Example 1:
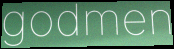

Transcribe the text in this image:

godmen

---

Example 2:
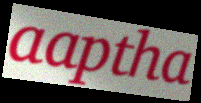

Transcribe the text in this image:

aaptha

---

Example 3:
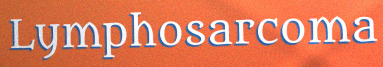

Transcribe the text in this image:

Lymphosarcoma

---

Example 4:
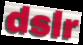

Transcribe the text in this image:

dslr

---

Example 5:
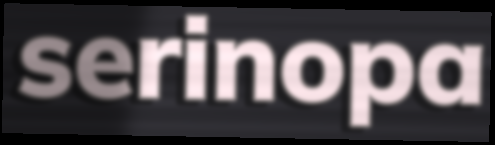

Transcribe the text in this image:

serinopa